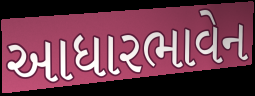
આધારભાવેન